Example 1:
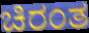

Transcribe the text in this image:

ಚಿರಂತ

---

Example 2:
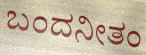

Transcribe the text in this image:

ಬಂದನೀತಂ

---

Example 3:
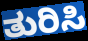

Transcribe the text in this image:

ತುರಿಸಿ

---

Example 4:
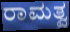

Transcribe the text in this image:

ರಾಮತ್ವ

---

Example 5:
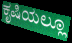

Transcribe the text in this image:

ಕೃಷಿಯಲ್ಲೂ